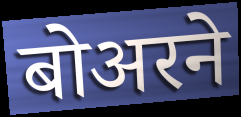
बोअरने